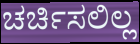
ಚರ್ಚಿಸಲಿಲ್ಲ